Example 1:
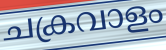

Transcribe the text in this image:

ചക്രവാളം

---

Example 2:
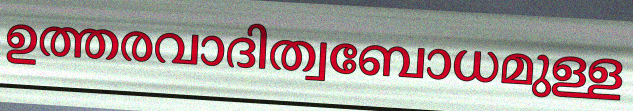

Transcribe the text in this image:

ഉത്തരവാദിത്വബോധമുള്ള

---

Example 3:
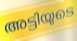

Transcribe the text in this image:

അട്ടിയുടെ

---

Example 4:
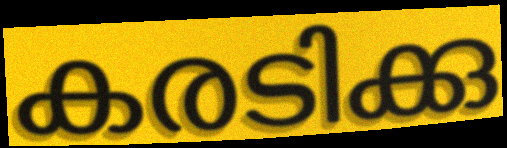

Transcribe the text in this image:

കരടിക്കു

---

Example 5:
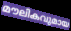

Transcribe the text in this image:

മൗലികവുമായ